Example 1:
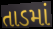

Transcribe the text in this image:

તાડમાં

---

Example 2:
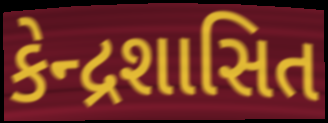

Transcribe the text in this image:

કેન્દ્રશાસિત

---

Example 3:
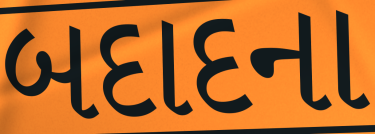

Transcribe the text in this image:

બદાદના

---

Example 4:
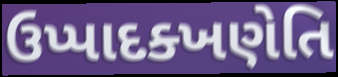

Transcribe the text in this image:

ઉપ્પાદક્ખણેતિ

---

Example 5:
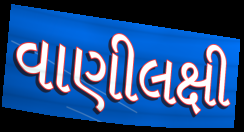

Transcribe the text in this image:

વાણીલક્ષી